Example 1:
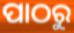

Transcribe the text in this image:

ପାଠରୁ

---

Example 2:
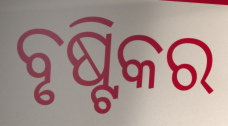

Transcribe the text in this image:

ବୃଷ୍ଟିକର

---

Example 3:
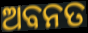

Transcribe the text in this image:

ଅବନତ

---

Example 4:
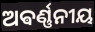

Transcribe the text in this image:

ଅଵର୍ଣ୍ଣନୀୟ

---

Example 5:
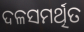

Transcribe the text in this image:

ଦଳସମର୍ଥିତ